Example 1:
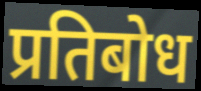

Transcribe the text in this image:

प्रतिबोध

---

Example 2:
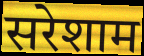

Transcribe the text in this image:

सरेशाम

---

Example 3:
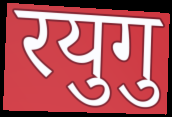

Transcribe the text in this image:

रयुगु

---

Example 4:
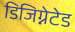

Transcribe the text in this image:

डिजिग्नेटेड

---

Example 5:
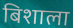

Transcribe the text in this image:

बिशाला